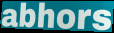
abhors